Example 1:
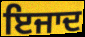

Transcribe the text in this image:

ਇਜਾਦ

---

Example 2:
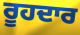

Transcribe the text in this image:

ਰੂਹਦਾਰ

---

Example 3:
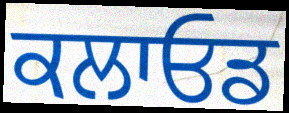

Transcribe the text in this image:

ਕਲਾਓਡ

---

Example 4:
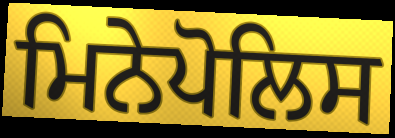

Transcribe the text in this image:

ਮਿਨੇਪੋਲਿਸ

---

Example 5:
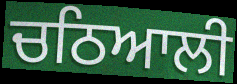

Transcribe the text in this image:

ਚਠਿਆਲੀ